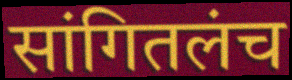
सांगितलंच